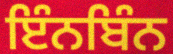
ਇੰਨਬਿੰਨ